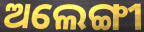
ଅଲେଙ୍ଗୀ